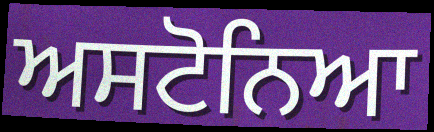
ਅਸਟੋਨਿਆ